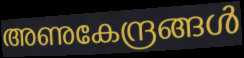
അണുകേന്ദ്രങ്ങൾ